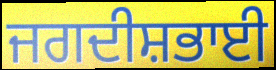
ਜਗਦੀਸ਼ਭਾਈ